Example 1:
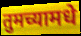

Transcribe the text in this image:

तुमच्यामधे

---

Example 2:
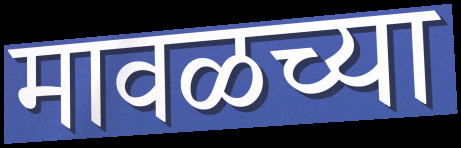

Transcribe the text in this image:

मावळच्या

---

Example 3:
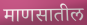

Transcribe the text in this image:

माणसातील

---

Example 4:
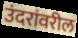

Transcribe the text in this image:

उंदरांवरील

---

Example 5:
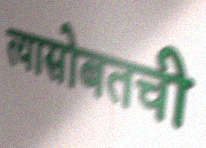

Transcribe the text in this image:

त्यासोबतची